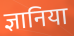
ज्ञानिया